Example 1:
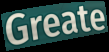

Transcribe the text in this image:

Greate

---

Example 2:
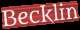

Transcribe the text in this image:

Becklin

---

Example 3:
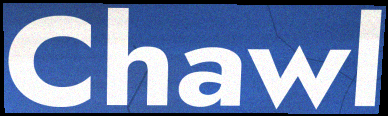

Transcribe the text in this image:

Chawl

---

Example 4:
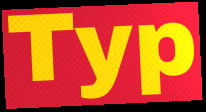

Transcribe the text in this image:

Typ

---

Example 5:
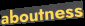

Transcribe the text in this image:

aboutness